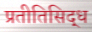
प्रतीतिसिद्ध